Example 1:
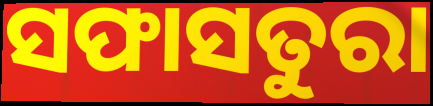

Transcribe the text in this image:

ସଫାସତୁରା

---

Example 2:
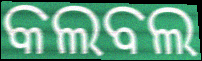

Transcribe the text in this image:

କଲବଲ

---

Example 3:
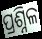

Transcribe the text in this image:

ପ୍ରଶ୍ନିଳ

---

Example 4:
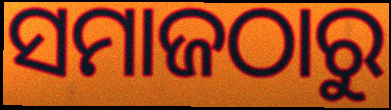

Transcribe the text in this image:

ସମାଜଠାରୁ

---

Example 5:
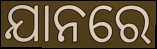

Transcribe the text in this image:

ଯାନରେ